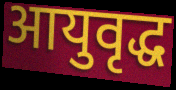
आयुवृद्ध